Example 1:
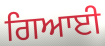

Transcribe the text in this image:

ਗਿਆਈ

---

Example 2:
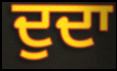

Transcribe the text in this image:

ਦੁਦਾ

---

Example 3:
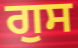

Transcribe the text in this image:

ਗੁਸ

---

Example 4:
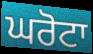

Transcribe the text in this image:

ਘਰੋਟਾ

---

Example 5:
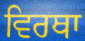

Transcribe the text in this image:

ਵਿਰਥਾ